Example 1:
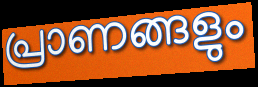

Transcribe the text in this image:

പ്രാണങ്ങളും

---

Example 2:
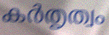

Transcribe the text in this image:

കർതൃത്വം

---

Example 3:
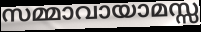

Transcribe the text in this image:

സമ്മാവായാമസ്സ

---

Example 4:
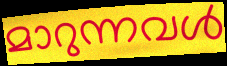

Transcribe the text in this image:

മാറുന്നവൾ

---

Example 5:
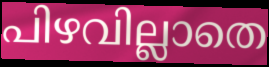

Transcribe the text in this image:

പിഴവില്ലാതെ